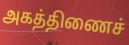
அகத்திணைச்